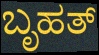
ಬೃಹತ್